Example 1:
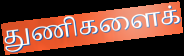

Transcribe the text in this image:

துணிகளைக்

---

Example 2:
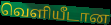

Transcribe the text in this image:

வெளியீடான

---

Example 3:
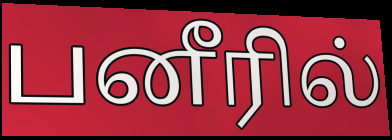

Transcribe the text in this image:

பனீரில்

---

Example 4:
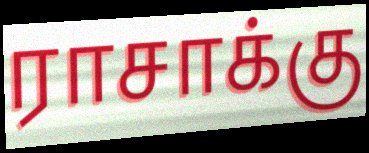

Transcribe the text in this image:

ராசாக்கு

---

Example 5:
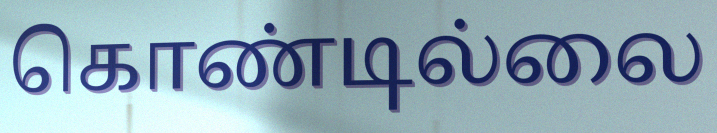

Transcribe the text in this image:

கொண்டில்லை